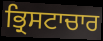
ਭ੍ਰਿਸਟਾਚਾਰ